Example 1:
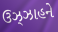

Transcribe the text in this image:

ઉઝ્ઝાહને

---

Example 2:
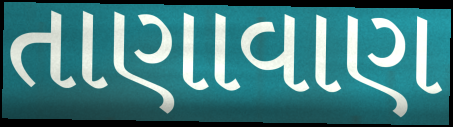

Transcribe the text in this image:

તાણાવાણ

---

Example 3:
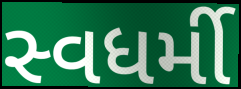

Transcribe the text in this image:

સ્વધર્મી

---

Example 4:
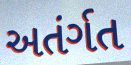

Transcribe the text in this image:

અતંર્ગત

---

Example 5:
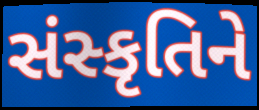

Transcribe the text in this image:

સંસ્કૃતિને